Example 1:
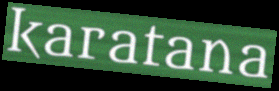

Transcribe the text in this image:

karatana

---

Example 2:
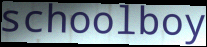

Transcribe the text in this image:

schoolboy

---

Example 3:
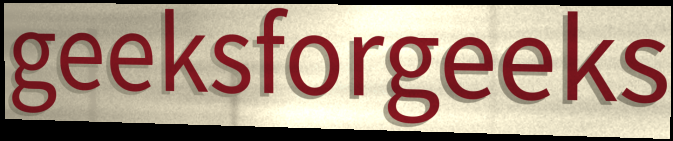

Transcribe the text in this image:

geeksforgeeks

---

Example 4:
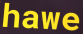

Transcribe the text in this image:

hawe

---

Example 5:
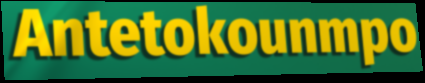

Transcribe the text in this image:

Antetokounmpo